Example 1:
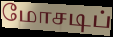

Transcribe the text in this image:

மோசடிப்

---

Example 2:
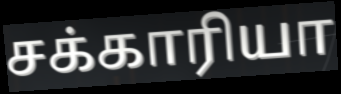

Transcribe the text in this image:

சக்காரியா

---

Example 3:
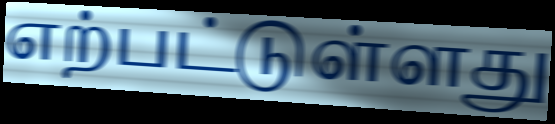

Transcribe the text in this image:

எற்பட்டுள்ளது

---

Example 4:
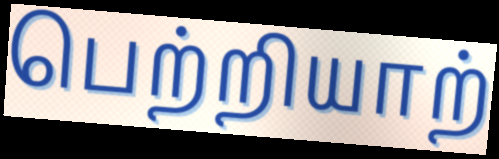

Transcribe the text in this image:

பெற்றியாற்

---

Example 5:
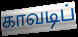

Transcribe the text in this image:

காவடிப்